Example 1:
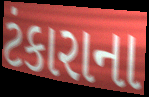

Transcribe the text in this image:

ટંકારાના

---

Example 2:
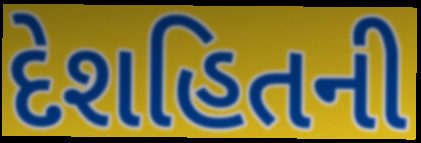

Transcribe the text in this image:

દેશહિતની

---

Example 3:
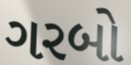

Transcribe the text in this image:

ગરબો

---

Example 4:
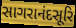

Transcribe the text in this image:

સાગરાનંદસૂરિ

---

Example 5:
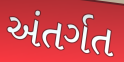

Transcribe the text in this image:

અંતર્ગત